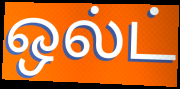
ஒல்ட்